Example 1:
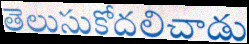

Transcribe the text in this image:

తెలుసుకోదలిచాడు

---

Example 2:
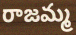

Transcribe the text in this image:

రాజమ్మ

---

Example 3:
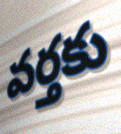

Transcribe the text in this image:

వర్తకు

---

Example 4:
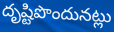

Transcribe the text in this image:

దృష్టిపొందునట్లు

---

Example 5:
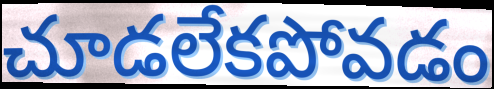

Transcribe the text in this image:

చూడలేకపోవడం